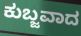
ಕುಬ್ಜವಾದ